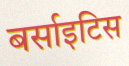
बर्साइटिस